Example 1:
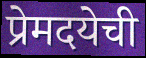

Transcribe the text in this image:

प्रेमदयेची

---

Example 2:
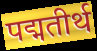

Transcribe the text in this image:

पद्मतीर्थ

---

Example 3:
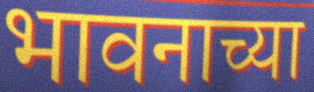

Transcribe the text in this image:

भावनाच्या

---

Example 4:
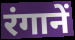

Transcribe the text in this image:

रंगानें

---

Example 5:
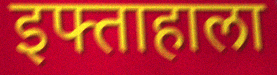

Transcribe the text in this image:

इफ्ताहाला